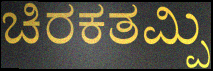
ಚಿರಕತಮ್ಪಿ